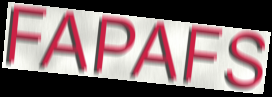
FAPAFS